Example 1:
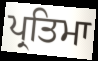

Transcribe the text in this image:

ਪ੍ਰਤਿਮਾ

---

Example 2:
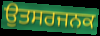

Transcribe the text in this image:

ਉਤਸਰਜਨਕ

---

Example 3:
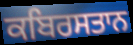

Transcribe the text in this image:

ਕਬਿਰਸਤਾਨ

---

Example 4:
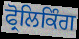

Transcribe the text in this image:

ਫ੍ਰੋਲਿਕਿੰਗ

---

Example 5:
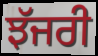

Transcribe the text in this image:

ਝੱਜਰੀ